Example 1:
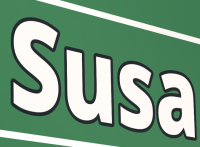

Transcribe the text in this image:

Susa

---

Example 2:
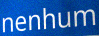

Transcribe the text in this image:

nenhum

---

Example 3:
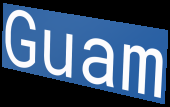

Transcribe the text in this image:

Guam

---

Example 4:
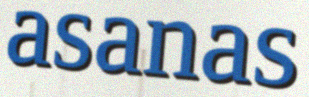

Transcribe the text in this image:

asanas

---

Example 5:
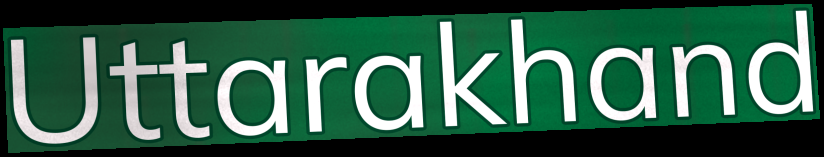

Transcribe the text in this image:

Uttarakhand